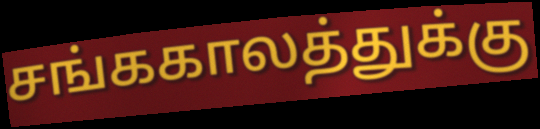
சங்ககாலத்துக்கு